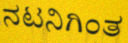
ನಟನಿಗಿಂತ